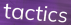
tactics